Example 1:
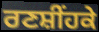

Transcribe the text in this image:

ਰਣਸ਼ੀਂਹਕੇ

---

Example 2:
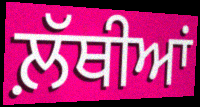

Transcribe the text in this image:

ਲ਼ੱਥੀਆਂ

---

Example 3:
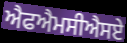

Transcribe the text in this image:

ਐਫਐਮਸੀਐਸਏ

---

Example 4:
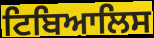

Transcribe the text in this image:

ਟਿਬਿਆਲਿਸ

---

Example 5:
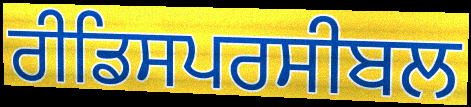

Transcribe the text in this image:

ਰੀਡਿਸਪਰਸੀਬਲ